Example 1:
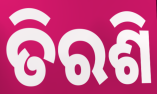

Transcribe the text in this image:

ତିରଶି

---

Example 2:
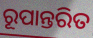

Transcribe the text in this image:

ରୂପାନ୍ତରିତ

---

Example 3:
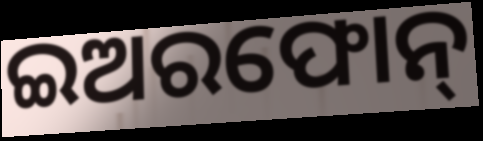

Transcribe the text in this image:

ଇଅରଫୋନ୍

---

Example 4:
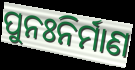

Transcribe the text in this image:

ପୁନଃନିର୍ମାଣ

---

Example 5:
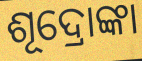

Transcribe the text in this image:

ଶୂଦ୍ରୋଙ୍କା